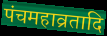
पंचमहाव्रतादि